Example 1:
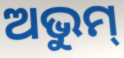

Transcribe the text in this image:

ଅଭୁମ୍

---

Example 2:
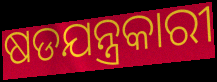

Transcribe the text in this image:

ଷଡଯନ୍ତ୍ରକାରୀ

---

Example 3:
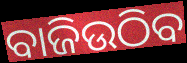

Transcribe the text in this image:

ବାଜିଉଠିବ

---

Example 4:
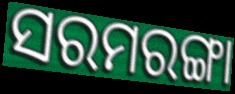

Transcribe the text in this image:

ସରମରଙ୍ଗା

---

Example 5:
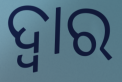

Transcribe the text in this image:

ଦ୍ବାର